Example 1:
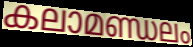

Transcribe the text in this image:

കലാമണ്ഡലം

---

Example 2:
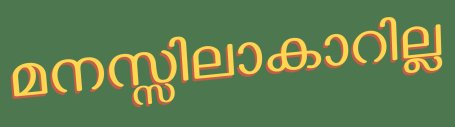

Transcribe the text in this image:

മനസ്സിലാകാറില്ല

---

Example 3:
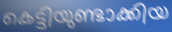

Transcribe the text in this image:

കെട്ടിയുണ്ടാക്കിയ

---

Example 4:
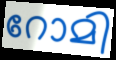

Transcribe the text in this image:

റോമി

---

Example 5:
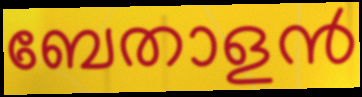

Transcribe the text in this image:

ബേതാളൻ